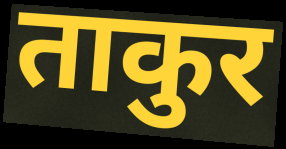
ताकुर